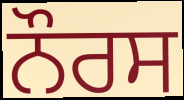
ਨੌਰਸ